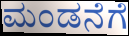
ಮಂಡನೆಗೆ